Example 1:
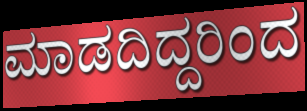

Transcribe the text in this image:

ಮಾಡದಿದ್ದರಿಂದ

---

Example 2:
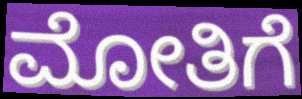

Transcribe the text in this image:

ಮೋತಿಗೆ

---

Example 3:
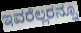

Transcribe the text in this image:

ಇವರೆಲ್ಲರನ್ನೂ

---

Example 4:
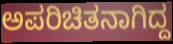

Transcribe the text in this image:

ಅಪರಿಚಿತನಾಗಿದ್ದ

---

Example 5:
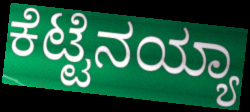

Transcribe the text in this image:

ಕೆಟ್ಟೆನಯ್ಯಾ